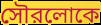
সৌরলোকে